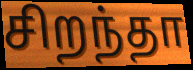
சிறந்தா